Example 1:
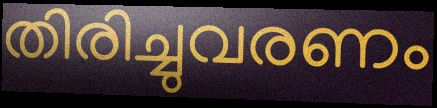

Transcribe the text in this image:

തിരിച്ചുവരണം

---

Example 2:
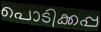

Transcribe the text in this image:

പൊടിക്കപ്പ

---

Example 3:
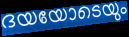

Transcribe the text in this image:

ദയയോടെയും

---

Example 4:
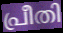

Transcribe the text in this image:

പ്രീതി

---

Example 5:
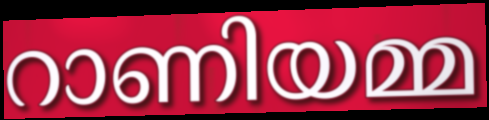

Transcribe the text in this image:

റാണിയമ്മ